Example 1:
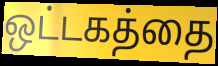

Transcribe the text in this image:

ஒட்டகத்தை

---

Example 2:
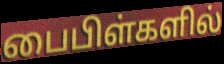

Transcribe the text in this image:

பைபிள்களில்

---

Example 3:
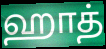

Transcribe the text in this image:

ஹாத்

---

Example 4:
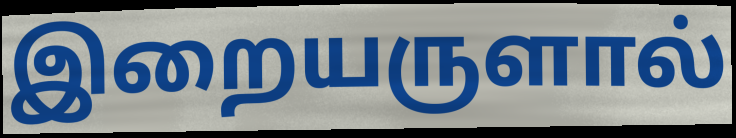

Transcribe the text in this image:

இறையருளால்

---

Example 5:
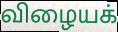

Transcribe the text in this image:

விழையக்